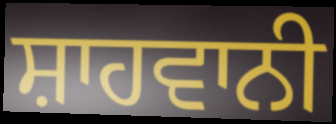
ਸ਼ਾਹਵਾਨੀ